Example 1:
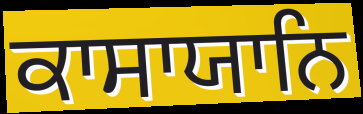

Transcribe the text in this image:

ਕਾਸਾਯਾਨਿ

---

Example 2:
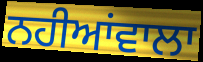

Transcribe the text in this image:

ਨਹੀਆਂਵਾਲਾ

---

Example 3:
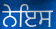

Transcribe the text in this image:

ਨੇਇਸ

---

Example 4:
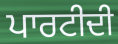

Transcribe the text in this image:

ਪਾਰਟੀਦੀ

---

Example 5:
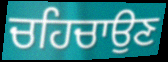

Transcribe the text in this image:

ਚਹਿਚਾਉਣ